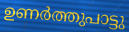
ഉണർത്തുപാട്ടു